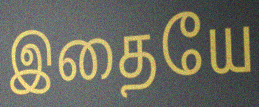
இதையே